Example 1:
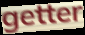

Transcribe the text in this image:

getter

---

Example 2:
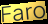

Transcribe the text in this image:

Faro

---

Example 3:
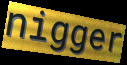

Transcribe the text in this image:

nigger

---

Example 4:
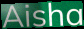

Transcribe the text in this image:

Aisha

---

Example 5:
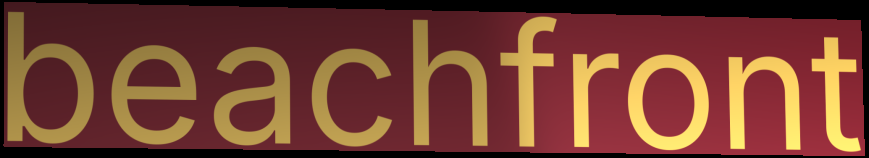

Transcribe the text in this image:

beachfront